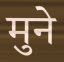
मुने